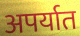
अपर्यात